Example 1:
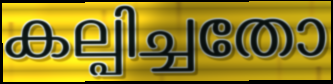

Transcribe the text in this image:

കല്പിച്ചതോ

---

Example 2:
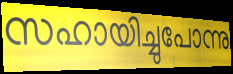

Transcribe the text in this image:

സഹായിച്ചുപോന്നു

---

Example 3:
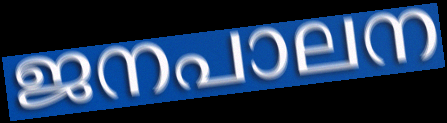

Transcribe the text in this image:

ജനപാലന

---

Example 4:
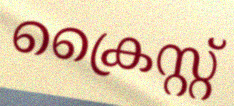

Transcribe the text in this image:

ക്രൈസ്റ്റ്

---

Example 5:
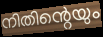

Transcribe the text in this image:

നിതിന്റെയും